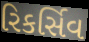
રિકર્સિવ